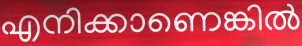
എനിക്കാണെങ്കിൽ